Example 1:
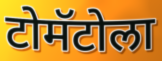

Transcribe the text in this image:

टोमॅटोला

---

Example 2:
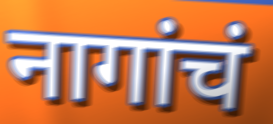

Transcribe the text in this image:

नागांचं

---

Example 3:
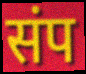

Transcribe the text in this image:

संप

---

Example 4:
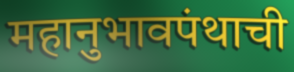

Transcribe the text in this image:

महानुभावपंथाची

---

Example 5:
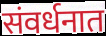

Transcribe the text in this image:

संवर्धनात